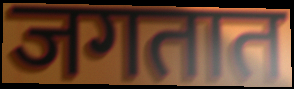
जगतात